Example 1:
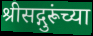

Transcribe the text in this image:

श्रीसद्गुरूंच्या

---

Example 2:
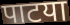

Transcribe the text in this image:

पाटया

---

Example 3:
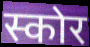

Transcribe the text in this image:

स्कोर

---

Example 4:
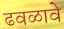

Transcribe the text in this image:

ढवळावे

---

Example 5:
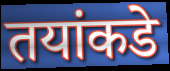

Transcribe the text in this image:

तयांकडे